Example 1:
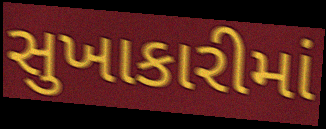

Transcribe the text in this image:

સુખાકારીમાં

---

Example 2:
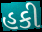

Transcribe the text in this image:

હકી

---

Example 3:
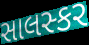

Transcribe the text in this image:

સાલસ્કર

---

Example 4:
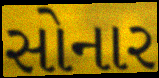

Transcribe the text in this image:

સોનાર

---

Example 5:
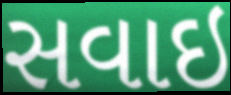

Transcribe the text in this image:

સવાઇ